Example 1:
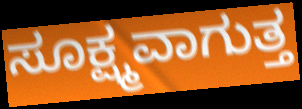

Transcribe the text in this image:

ಸೂಕ್ಷ್ಮವಾಗುತ್ತ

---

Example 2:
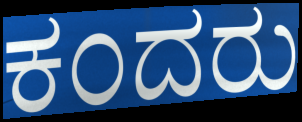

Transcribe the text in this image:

ಕಂದರು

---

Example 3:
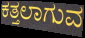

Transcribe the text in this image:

ಕತ್ತಲಾಗುವ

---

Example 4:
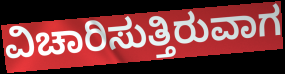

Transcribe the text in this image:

ವಿಚಾರಿಸುತ್ತಿರುವಾಗ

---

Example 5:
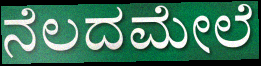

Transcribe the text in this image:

ನೆಲದಮೇಲೆ